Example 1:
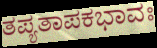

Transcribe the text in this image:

ತಪ್ಯತಾಪಕಭಾವಃ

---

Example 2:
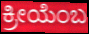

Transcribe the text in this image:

ಕ್ರೀಯೆಂಬ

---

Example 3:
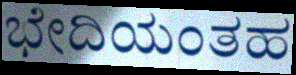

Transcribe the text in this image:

ಭೇದಿಯಂತಹ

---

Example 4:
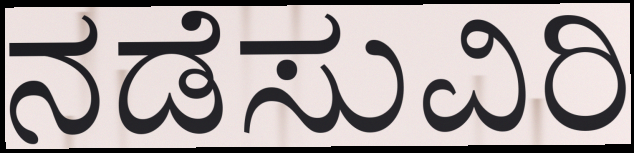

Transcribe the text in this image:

ನಡೆಸುವಿರಿ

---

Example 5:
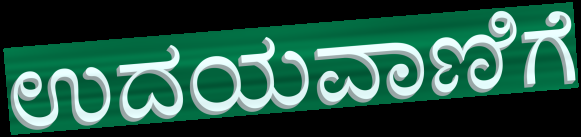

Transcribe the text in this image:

ಉದಯವಾಣಿಗೆ